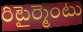
రిటైర్మెంటు